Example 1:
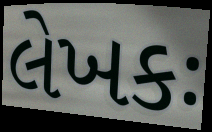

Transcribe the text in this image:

લેખકઃ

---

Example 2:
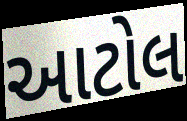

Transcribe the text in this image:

આટોલ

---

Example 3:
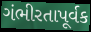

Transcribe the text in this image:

ગંભીરતાપૂર્વક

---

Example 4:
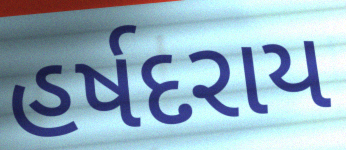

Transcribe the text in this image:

હર્ષદરાય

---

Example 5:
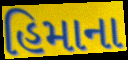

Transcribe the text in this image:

હિમાના